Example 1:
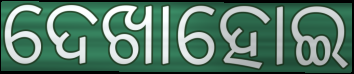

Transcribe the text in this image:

ଦେଖାହୋଇ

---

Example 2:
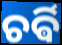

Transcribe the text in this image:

ଚର୍ଵି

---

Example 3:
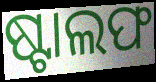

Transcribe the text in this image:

ଷ୍ଟାଲଫ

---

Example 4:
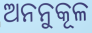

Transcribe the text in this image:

ଅନନୁକୂଳ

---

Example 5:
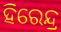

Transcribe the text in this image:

ହିରେନ୍ଦ୍ର